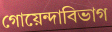
গোয়েন্দাবিভাগ